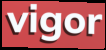
vigor